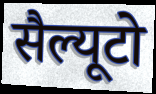
सैल्यूटो